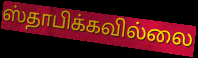
ஸ்தாபிக்கவில்லை